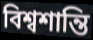
বিশ্বশান্তি